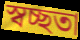
স্বচ্ছতা